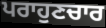
ਪਰਾਹੁਣਚਾਰ